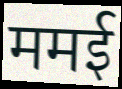
ममई